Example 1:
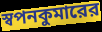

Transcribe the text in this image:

স্বপনকুমারের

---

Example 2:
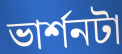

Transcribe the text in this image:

ভার্শনটা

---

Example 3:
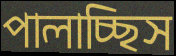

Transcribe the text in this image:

পালাচ্ছিস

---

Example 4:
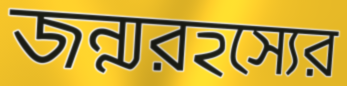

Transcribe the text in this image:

জন্মরহস্যের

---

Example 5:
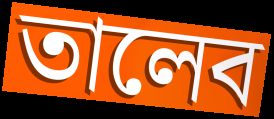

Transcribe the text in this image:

তালেব